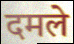
दमले